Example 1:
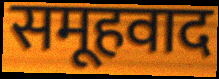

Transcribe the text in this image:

समूहवाद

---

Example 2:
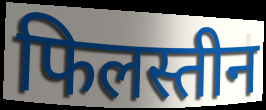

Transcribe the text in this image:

फिलस्तीन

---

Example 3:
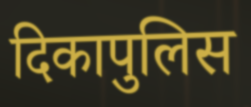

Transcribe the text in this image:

दिकापुलिस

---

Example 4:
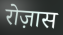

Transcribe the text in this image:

रोज़ास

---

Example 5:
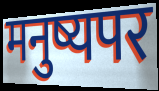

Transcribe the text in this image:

मनुष्यपर